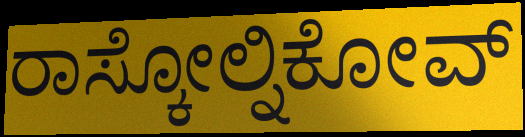
ರಾಸ್ಕೋಲ್ನಿಕೋವ್